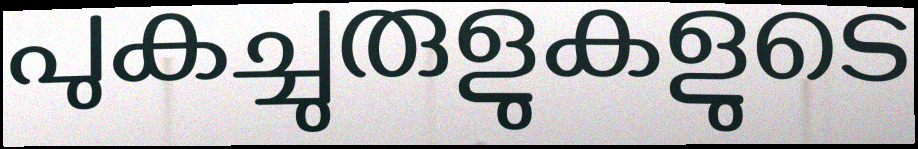
പുകച്ചുരുളുകളുടെ